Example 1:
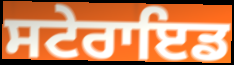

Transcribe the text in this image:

ਸਟੇਰਾਇਡ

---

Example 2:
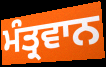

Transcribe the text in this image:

ਮੰਤ੍ਰਵਾਨ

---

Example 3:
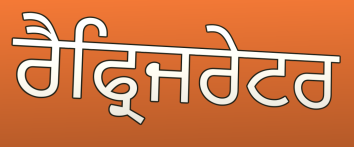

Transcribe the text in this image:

ਰੈਫ੍ਰਿਜਰੇਟਰ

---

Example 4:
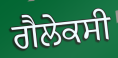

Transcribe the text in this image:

ਗੈਲੇਕਸੀ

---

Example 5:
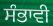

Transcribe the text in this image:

ਸੰਭਾਵੀ